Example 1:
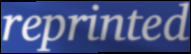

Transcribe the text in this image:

reprinted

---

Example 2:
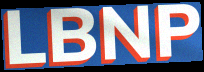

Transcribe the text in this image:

LBNP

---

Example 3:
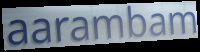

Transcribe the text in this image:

aarambam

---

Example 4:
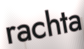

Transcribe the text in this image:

rachta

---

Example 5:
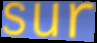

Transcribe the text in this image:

sur